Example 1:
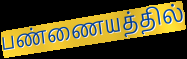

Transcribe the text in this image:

பண்ணையத்தில்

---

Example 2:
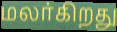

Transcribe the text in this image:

மலர்கிறது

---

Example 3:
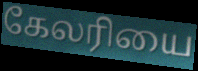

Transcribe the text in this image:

கேலரியை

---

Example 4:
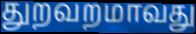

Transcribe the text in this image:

துறவறமாவது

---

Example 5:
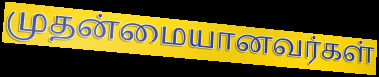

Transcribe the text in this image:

முதன்மையானவர்கள்